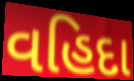
વહિદા